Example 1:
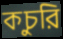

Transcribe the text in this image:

কচুরি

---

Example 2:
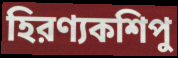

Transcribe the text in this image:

হিরণ্যকশিপু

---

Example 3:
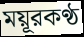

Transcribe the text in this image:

ময়ূরকণ্ঠ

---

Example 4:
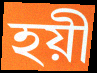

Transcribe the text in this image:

হয়ী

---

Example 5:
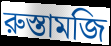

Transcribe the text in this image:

রুস্তামজি